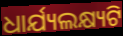
ଧାର୍ଯ୍ୟଲକ୍ଷ୍ୟଟି